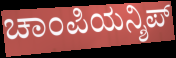
ಚಾಂಪಿಯನ್ಶಿಪ್